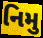
નિમુ